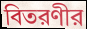
বিতরণীর